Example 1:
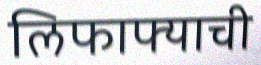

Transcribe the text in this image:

लिफाफ्याची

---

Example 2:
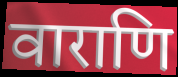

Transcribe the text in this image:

वाराणि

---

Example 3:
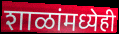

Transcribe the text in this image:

शाळांमध्येही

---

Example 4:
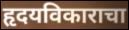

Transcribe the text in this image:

हृदयविकाराचा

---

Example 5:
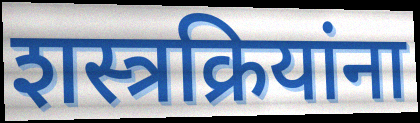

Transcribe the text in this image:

शस्त्रक्रियांना